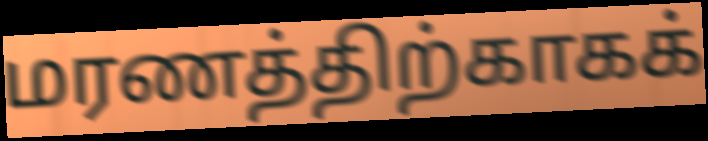
மரணத்திற்காகக்